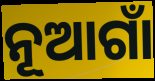
ନୂଆଗାଁ